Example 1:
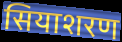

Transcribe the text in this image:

सियाशरण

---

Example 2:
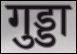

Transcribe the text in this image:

गुड्डा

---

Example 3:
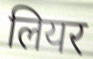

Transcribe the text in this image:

लियर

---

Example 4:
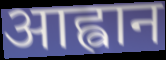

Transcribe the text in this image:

आह्वान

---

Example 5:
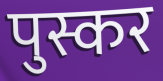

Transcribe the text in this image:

पुस्कर